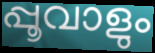
പ്പൂവാളും